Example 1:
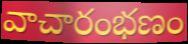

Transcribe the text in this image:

వాచారంభణం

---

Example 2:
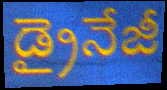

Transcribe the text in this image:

డ్రైనేజీ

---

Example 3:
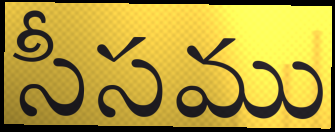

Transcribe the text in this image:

సీసము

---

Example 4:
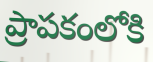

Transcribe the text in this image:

ప్రాపకంలోకి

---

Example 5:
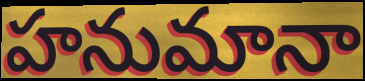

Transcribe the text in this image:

హనుమానా